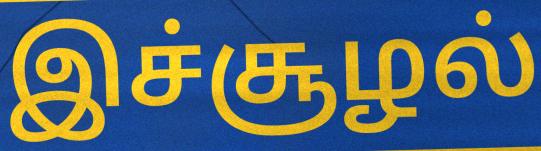
இச்சூழல்